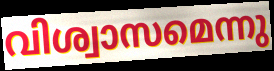
വിശ്വാസമെന്നു